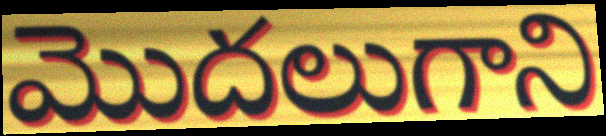
మొదలుగాని